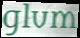
glum